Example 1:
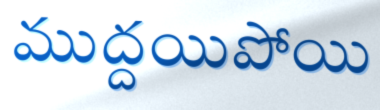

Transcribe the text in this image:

ముద్దయిపోయి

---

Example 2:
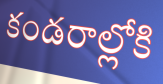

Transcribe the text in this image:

కండరాల్లోకి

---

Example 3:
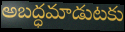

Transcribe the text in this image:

అబద్ధమాడుటకు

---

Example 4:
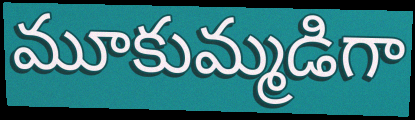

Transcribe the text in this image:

మూకుమ్మడిగా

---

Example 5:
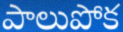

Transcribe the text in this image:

పాలుపోక